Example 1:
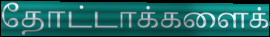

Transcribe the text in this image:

தோட்டாக்களைக்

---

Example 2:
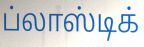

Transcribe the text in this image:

ப்லாஸ்டிக்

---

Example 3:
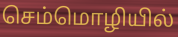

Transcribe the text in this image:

செம்மொழியில்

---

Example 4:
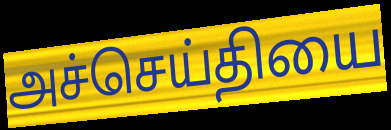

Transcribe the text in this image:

அச்செய்தியை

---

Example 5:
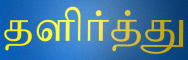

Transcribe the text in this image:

தளிர்த்து